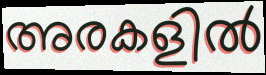
അരകളിൽ